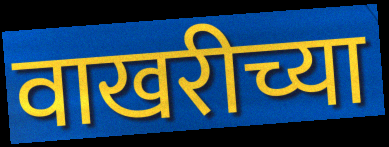
वाखरीच्या